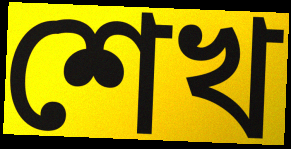
শেখ